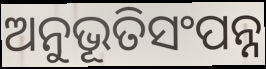
ଅନୁଭୂତିସଂପନ୍ନ